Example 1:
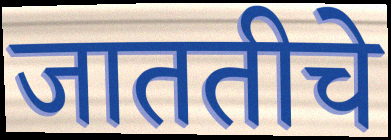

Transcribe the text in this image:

जाततीचे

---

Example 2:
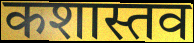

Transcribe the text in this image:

कशास्तव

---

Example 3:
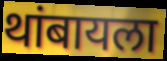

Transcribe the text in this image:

थांबायला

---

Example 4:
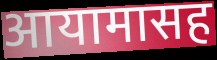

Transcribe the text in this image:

आयामासह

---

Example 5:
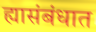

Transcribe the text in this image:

ह्यासंबंधात